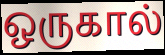
ஒருகால்